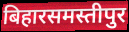
बिहारसमस्तीपुर